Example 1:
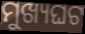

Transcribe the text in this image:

ମୁଖ୍ୟଘଟ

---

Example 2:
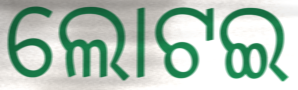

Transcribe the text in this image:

ଲୋଟଇ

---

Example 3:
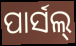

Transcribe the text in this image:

ପାର୍ସଲ୍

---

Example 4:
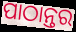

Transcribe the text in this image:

ପାଠାନ୍ତର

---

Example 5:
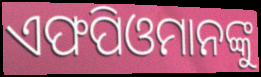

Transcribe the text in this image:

ଏଫପିଓମାନଙ୍କୁ